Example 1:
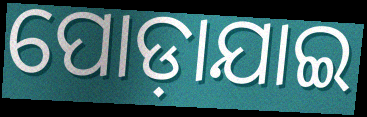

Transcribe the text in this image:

ପୋଡ଼ାଯାଇ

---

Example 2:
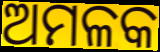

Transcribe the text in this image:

ଅମଳକ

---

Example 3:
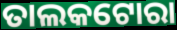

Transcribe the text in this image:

ତାଲକଟୋରା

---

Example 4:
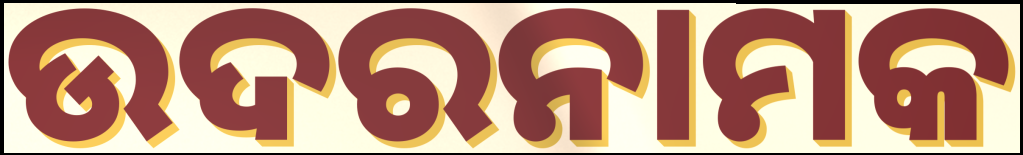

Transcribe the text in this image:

ଉଦରନାମକ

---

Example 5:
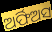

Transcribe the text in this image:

ଅର୍ଫିଅସ